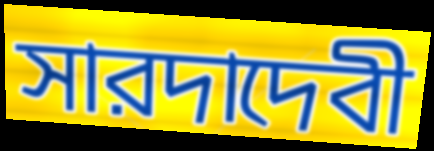
সারদাদেবী